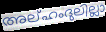
അല്ഹംദുലില്ലാ